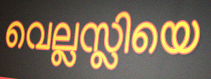
വെല്ലസ്ലിയെ